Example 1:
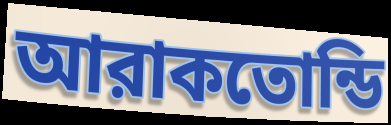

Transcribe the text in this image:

আরাকতোন্ডি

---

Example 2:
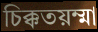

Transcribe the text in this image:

চিক্কতয়ম্মা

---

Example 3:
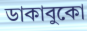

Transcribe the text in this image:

ডাকাবুকো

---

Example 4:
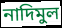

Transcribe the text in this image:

নাদিমুল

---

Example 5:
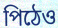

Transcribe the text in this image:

পিঠেও